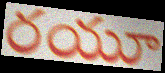
రయూ